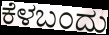
ಕೆಳಬಂದು